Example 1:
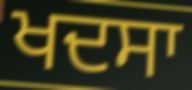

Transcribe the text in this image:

ਖਦਸਾ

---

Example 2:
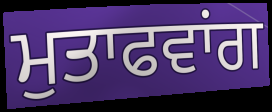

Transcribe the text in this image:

ਮੁਤਾਫਵਾਂਗ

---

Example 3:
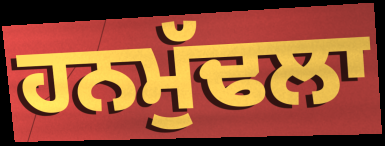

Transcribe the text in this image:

ਹਨਮੁੱਢਲਾ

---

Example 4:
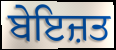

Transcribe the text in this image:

ਬੇਇਜ਼ਤ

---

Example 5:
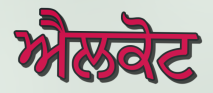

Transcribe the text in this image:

ਐਲਕੋਟ